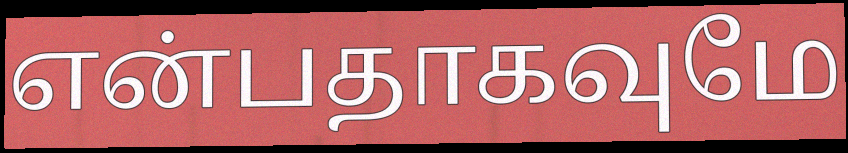
என்பதாகவுமே